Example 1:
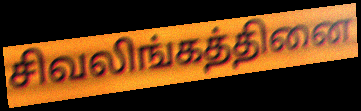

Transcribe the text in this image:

சிவலிங்கத்தினை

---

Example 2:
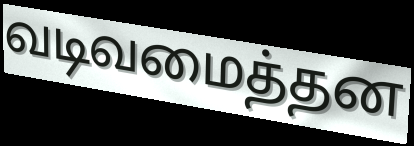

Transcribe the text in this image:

வடிவமைத்தன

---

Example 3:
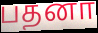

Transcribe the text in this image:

பதனா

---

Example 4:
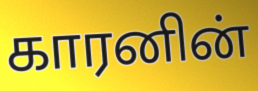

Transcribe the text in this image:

காரனின்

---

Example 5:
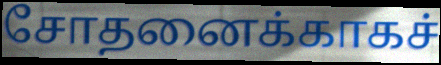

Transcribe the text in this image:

சோதனைக்காகச்